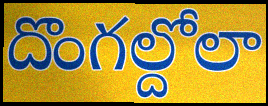
దొంగల్దోలా